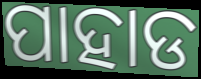
ପାହାଡ